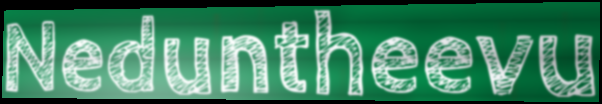
Neduntheevu